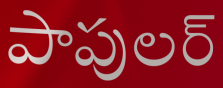
పాపులర్